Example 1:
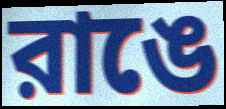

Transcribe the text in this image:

রাঙে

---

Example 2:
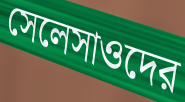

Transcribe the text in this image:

সেলেসাওদের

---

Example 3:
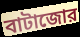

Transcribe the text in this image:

বাটাজোর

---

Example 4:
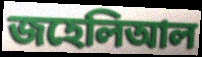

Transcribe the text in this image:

জহেলিআল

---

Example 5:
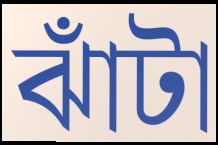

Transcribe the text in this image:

ঝাঁটা